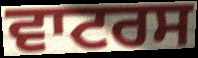
ਵਾਟਰਸ